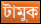
টামুক